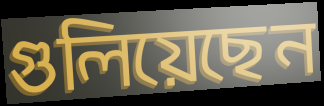
গুলিয়েছেন